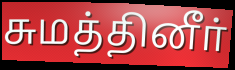
சுமத்தினீர்